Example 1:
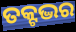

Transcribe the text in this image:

ତକ୍ଟଦ୍ଭର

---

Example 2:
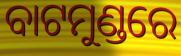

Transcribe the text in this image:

ବାଟମୁଣ୍ଡରେ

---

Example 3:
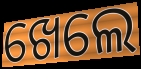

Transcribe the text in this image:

ଖେଲେ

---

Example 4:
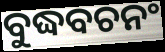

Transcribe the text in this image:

ବୁଦ୍ଧବଚନଂ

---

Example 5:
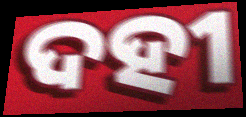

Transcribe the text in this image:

ଦହୀ